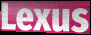
Lexus